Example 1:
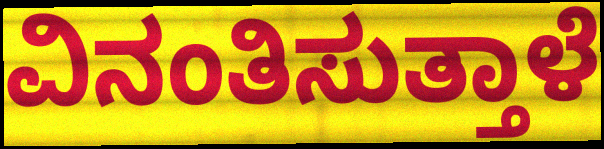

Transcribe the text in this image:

ವಿನಂತಿಸುತ್ತಾಳೆ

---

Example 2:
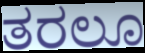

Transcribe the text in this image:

ತರಲೂ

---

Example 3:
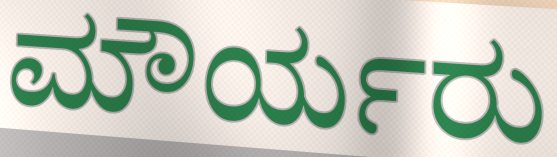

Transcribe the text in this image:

ಮೌರ್ಯರು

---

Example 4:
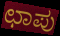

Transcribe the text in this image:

ಛಾಪು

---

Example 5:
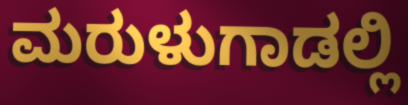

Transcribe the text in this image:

ಮರುಳುಗಾಡಲ್ಲಿ